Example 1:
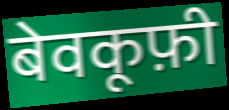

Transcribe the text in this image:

बेवकूफ़ी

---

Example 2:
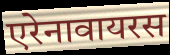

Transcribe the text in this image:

एरेनावायरस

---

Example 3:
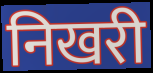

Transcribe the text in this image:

निखरी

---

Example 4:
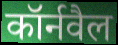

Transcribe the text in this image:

कॉर्नवैल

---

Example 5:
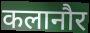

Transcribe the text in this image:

कलानौर